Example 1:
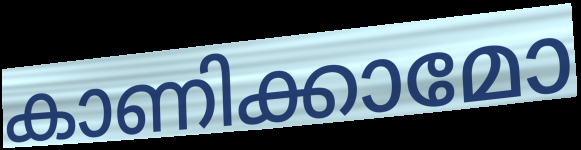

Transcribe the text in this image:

കാണിക്കാമോ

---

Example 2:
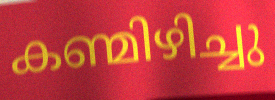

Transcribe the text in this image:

കണ്മിഴിച്ചു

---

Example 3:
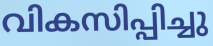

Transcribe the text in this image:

വികസിപ്പിച്ചു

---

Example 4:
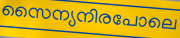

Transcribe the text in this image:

സൈന്യനിരപോലെ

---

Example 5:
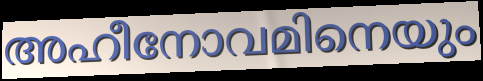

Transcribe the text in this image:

അഹീനോവമിനെയും